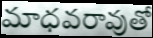
మాధవరావుతో